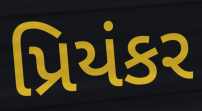
પ્રિયંકર